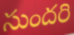
సుందరి